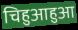
चिहुआहुआ